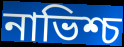
নাভিশ্চ